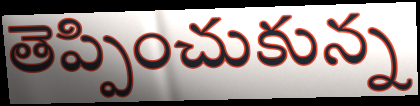
తెప్పించుకున్న